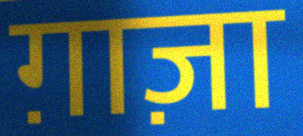
ग़ाज़ा